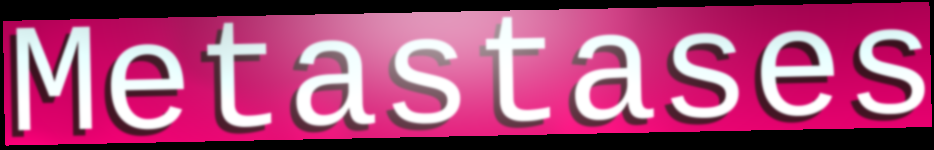
Metastases